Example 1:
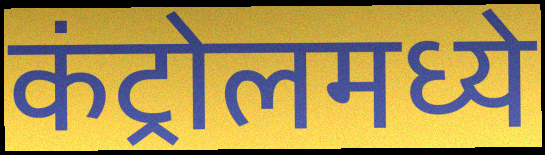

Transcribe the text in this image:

कंट्रोलमध्ये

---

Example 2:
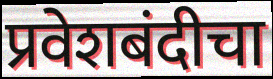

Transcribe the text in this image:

प्रवेशबंदीचा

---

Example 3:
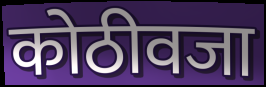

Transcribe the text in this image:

कोठीवजा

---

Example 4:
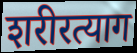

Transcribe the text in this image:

शरीरत्याग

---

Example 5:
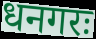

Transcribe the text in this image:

धनगरः